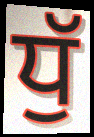
ਧੁੱ